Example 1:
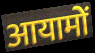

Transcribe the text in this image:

आयामों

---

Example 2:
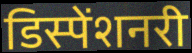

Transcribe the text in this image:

डिस्पेंशनरी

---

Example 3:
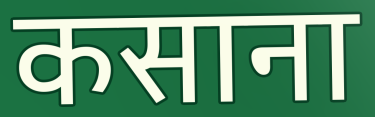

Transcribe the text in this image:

कसाना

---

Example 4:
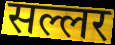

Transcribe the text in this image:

सल्लर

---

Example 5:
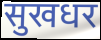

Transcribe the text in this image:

सुखधर